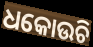
ଧକୋଉଚି